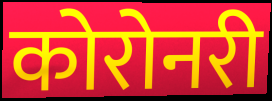
कोरोनरी